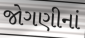
જોગણીનાં